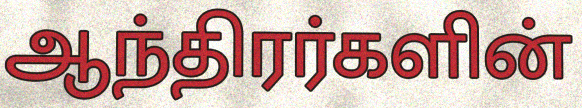
ஆந்திரர்களின்